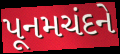
પૂનમચંદને